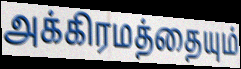
அக்கிரமத்தையும்